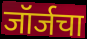
जॉर्जचा